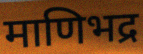
माणिभद्र